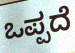
ಒಪ್ಪದೆ